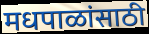
मधपाळांसाठी